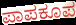
ಪಾಪಕೂಪ